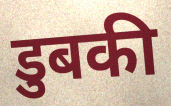
डुबकी